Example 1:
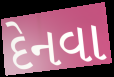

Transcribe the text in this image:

દેનવા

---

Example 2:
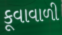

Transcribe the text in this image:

કૂવાવાળી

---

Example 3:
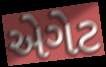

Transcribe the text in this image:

એગેટ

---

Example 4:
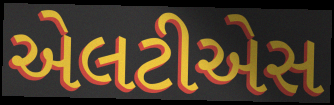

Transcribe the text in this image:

એલટીએસ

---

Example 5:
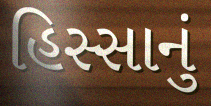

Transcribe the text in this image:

હિસ્સાનું